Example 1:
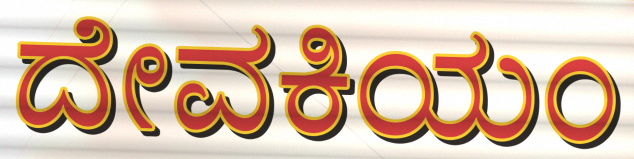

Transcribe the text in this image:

ದೇವಕಿಯಂ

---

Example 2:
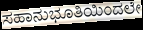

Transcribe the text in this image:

ಸಹಾನುಭೂತಿಯಿಂದಲೇ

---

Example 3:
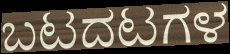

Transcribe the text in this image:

ಬಟದಟಗಳ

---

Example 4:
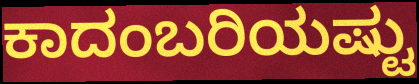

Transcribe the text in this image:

ಕಾದಂಬರಿಯಷ್ಟು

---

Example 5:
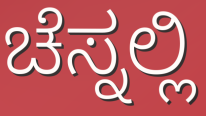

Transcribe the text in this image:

ಚೆಸ್ನಲ್ಲಿ